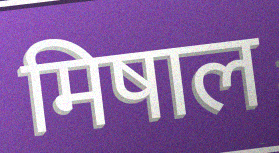
मिषाल